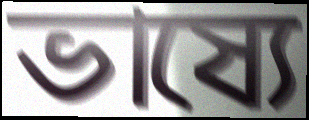
ভাষ্যে